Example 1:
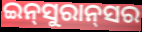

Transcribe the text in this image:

ଇନ୍‍ସୁରାନ୍‍ସର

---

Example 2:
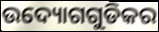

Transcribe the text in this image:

ଉଦ୍ୟୋଗଗୁଡିକର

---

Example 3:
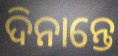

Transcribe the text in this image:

ଦିନାନ୍ତେ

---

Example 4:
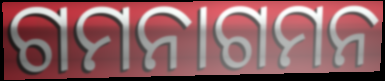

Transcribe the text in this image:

ଗମନାଗମନ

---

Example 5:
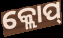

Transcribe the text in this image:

କ୍ଲୋପ୍